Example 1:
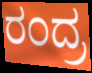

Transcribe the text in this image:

ರಂದ್ರ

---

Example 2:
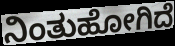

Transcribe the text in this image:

ನಿಂತುಹೋಗಿದೆ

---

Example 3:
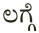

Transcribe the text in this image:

ಲಗ್ಗೆ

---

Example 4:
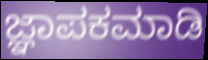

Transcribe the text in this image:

ಜ್ಞಾಪಕಮಾಡಿ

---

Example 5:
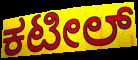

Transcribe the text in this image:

ಕಟೀಲ್